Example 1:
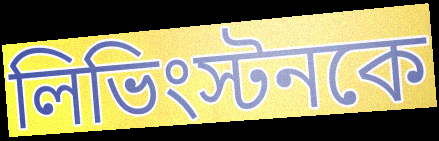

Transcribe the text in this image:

লিভিংস্টনকে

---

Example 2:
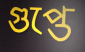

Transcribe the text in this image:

গুপ্তে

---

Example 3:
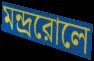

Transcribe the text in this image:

মন্দ্ররোলে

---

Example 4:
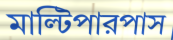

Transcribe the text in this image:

মাল্টিপারপাস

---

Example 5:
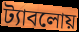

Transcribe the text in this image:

ট্যাবলোয়